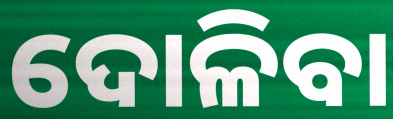
ଦୋଳିବା